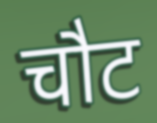
चौट